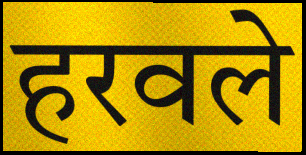
हरवले